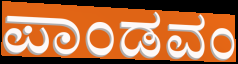
ಪಾಂಡವಂ